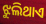
ଝୁଲିଥାଏ